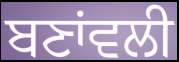
ਬਣਾਂਵਲੀ